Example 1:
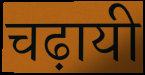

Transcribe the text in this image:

चढ़ायी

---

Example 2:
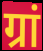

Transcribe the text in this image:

ग्रां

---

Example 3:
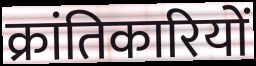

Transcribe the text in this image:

क्रांतिकारियों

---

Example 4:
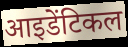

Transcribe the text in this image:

आइडेंटिकल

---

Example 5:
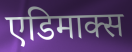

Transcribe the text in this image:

एडिमाक्स